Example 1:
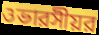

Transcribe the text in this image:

ওভারসীয়র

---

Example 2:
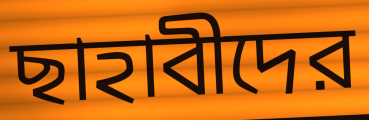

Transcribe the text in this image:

ছাহাবীদের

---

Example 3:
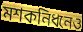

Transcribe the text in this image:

মশকনিধনেও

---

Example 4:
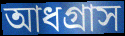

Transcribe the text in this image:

আধগ্রাস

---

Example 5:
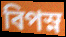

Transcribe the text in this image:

বিপস্ন